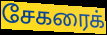
சேகரைக்